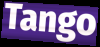
Tango